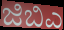
ಜಿಬಿಎ